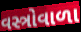
વસ્ત્રોવાળા